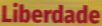
Liberdade